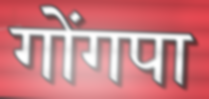
गोंगपा